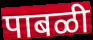
पाबळी